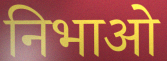
निभाओ